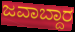
ಜವಾಬ್ದಾರ